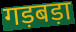
गड़बड़ा